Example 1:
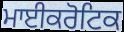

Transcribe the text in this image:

ਮਾਈਕਰੋਟਿਕ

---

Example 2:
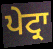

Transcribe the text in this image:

ਪੇਟ੍ਰਾ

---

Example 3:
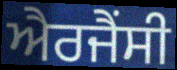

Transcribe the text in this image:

ਐਰਜੈਂਸੀ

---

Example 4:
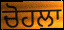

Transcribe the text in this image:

ਚੋਹਲਾ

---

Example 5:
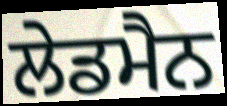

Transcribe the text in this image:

ਲੇਡਮੈਨ